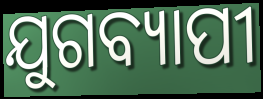
ଯୁଗବ୍ୟାପୀ